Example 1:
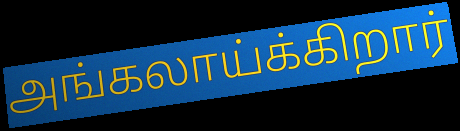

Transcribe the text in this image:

அங்கலாய்க்கிறார்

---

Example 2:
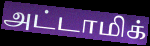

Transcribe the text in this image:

அட்டாமிக்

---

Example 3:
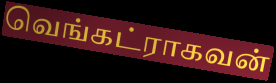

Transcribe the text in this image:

வெங்கட்ராகவன்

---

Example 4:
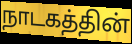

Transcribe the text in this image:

நாடகத்தின்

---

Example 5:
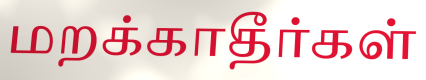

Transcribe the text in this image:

மறக்காதீர்கள்